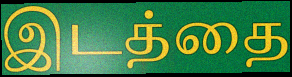
இடத்தை